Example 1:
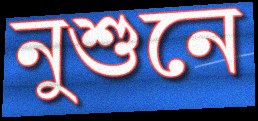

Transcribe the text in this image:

নুশুনে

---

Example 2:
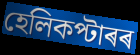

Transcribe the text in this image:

হেলিকপ্টাৰৰ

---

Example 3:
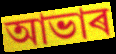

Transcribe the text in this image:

আভাৰ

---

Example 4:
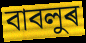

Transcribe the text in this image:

বাবলুৰ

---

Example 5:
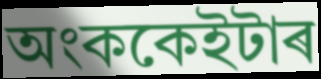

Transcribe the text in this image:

অংককেইটাৰ